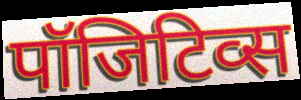
पॉजिटिव्स